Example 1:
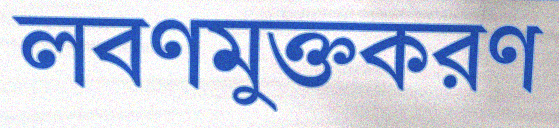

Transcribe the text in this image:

লবণমুক্তকরণ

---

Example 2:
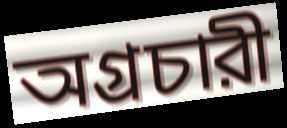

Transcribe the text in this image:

অগ্রচারী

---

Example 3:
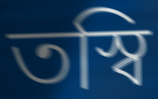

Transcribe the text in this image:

তস্বি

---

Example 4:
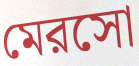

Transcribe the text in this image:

মেরসো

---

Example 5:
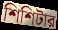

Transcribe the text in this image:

শিশিটার